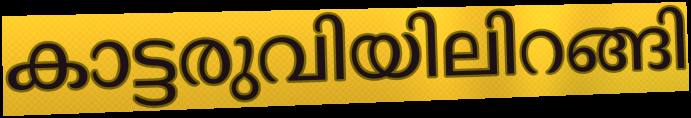
കാട്ടരുവിയിലിറങ്ങി